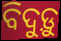
ବିଦୁଡ଼ୁ